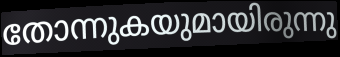
തോന്നുകയുമായിരുന്നു